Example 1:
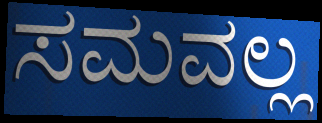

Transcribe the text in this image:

ಸಮವಲ್ಲ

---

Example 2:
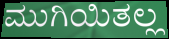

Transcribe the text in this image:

ಮುಗಿಯಿತಲ್ಲ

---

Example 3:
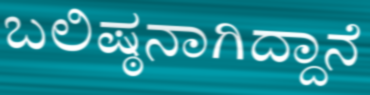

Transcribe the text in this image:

ಬಲಿಷ್ಠನಾಗಿದ್ದಾನೆ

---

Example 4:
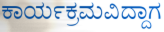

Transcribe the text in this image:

ಕಾರ್ಯಕ್ರಮವಿದ್ದಾಗ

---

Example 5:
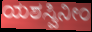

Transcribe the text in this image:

ಯಶಸ್ವಿನೀಂ